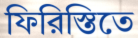
ফিরিস্তিতে